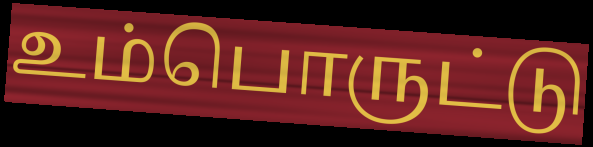
உம்பொருட்டு